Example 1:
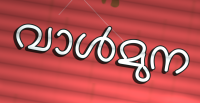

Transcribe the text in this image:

വാൾമുന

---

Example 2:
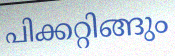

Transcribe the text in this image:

പിക്കറ്റിങ്ങും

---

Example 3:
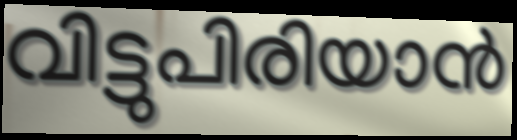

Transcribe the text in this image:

വിട്ടുപിരിയാൻ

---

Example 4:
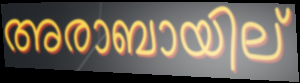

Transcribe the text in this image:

അരാബായില്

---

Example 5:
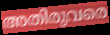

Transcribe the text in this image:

അതിരുവരെ